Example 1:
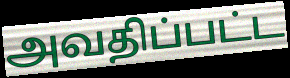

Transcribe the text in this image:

அவதிப்பட்ட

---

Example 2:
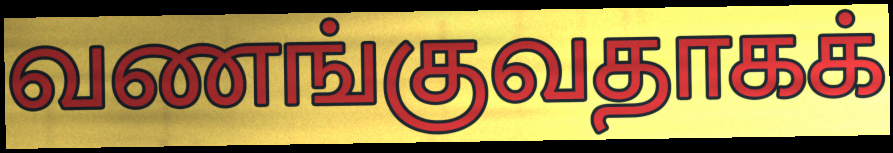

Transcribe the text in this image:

வணங்குவதாகக்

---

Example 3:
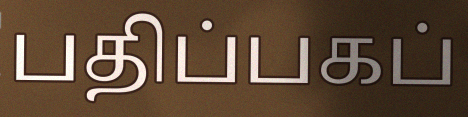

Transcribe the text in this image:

பதிப்பகப்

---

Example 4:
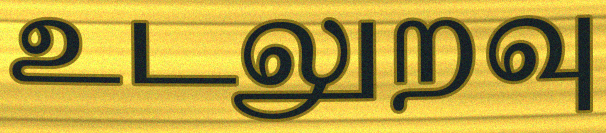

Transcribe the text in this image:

உடலுறவு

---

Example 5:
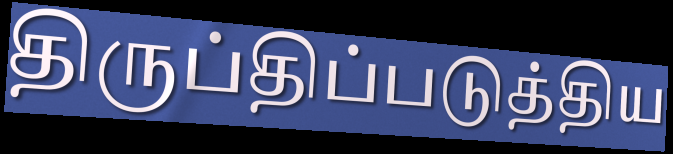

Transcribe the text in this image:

திருப்திப்படுத்திய